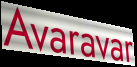
Avaravar